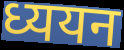
ध्ययन